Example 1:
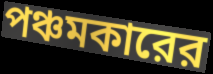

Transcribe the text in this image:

পঞ্চমকারের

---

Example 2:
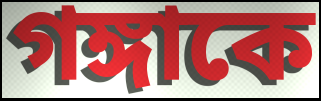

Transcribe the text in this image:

গঙ্গাকে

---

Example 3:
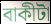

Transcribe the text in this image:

বাকীটা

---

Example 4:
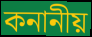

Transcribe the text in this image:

কনানীয়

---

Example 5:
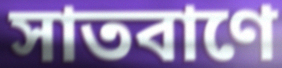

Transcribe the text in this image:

সাতবাণে